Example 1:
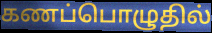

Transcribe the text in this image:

கணப்பொழுதில்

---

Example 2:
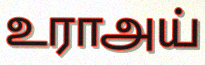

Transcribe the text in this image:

உராஅய்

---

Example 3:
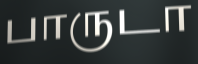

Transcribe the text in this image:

பாருடா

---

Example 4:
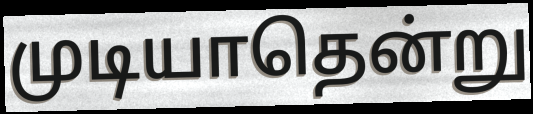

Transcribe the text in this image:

முடியாதென்று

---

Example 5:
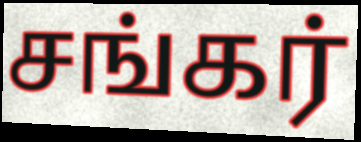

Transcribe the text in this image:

சங்கர்